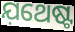
ଯ଼ଥେଷ୍ଟ